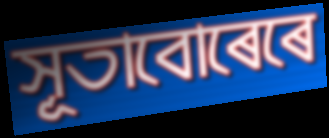
সূতাবোৰেৰে